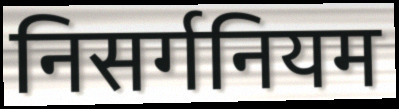
निसर्गनियम